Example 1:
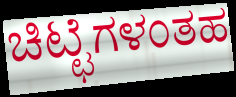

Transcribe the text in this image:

ಚಿಟ್ಟೆಗಳಂತಹ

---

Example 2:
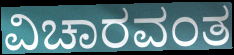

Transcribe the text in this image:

ವಿಚಾರವಂತ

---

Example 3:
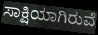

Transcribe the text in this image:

ಸಾಕ್ಷಿಯಾಗಿರುವೆ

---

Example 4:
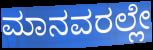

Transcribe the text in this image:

ಮಾನವರಲ್ಲೇ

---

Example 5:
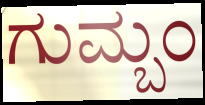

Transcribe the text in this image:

ಗುಮ್ಬಂ